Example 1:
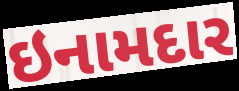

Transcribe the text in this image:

ઇનામદાર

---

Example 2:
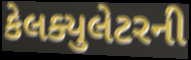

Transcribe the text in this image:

કેલક્યુલેટરની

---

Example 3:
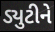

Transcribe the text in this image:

ડ્યુટીને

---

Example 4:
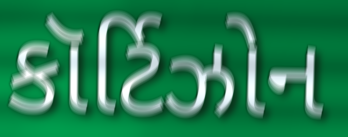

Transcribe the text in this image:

કૉર્ટિઝોન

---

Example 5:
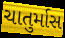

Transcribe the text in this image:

ચાતુર્માસ